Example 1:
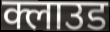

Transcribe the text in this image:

क्‍लाउड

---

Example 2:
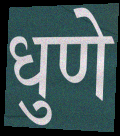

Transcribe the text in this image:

धुणे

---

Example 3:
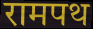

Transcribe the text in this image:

रामपथ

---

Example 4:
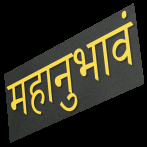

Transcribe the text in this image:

महानुभावं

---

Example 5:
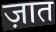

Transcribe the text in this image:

ज़ात